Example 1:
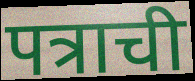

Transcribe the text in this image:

पत्राची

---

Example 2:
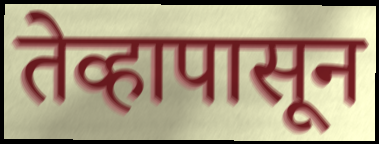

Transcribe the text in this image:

तेव्हापासून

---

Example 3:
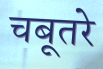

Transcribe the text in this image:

चबूतरे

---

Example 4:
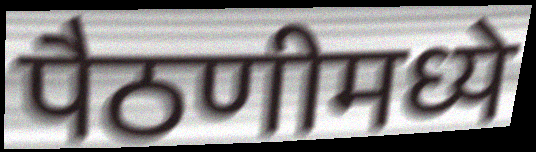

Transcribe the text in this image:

पैठणीमध्ये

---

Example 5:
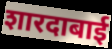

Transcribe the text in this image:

शारदाबाई